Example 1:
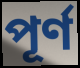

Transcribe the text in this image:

পূৰ্ণ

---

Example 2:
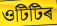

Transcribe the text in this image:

ওটিটিৰ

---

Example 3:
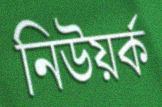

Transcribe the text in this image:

নিউয়ৰ্ক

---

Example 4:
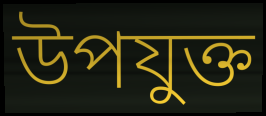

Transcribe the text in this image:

উপযুক্ত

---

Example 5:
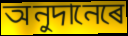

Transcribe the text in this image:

অনুদানেৰে